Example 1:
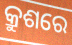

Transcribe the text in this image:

କ୍ରୁଶରେ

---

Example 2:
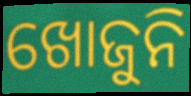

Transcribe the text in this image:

ଖୋଜୁନି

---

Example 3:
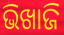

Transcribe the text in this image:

ଭିଖାଜି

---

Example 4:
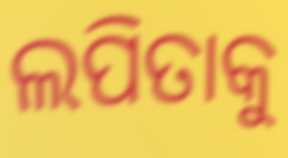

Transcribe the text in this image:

ଲପିତାକୁ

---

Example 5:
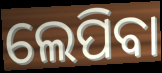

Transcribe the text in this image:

ଲେପିବା